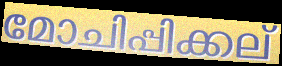
മോചിപ്പിക്കല്